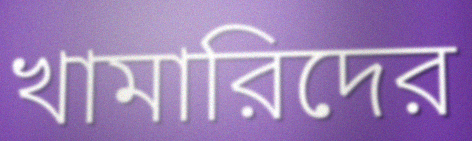
খামারিদের